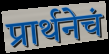
प्रार्थनेचं